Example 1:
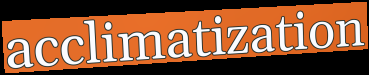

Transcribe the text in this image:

acclimatization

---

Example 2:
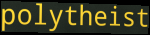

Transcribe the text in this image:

polytheist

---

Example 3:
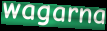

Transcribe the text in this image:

wagarna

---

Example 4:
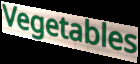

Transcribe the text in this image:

Vegetables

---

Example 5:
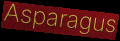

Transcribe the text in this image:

Asparagus